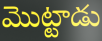
మొట్టాడు